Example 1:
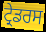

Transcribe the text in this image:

ਟ੍ਰੇਡਰਸ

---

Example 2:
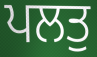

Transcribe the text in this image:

ਪਲਤੁ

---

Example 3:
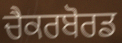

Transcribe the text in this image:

ਚੈਕਰਬੋਰਡ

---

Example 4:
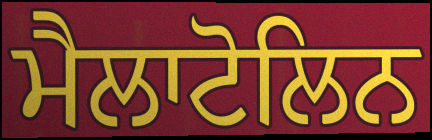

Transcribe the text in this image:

ਮੈਲਾਟੋਲਿਨ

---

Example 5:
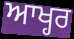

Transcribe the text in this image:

ਆਖ੍ਹਰ